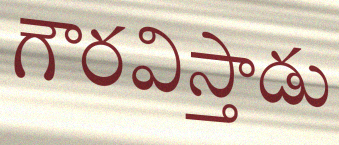
గౌరవిస్తాడు